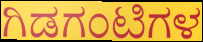
ಗಿಡಗಂಟಿಗಳ